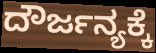
ದೌರ್ಜನ್ಯಕ್ಕೆ